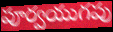
పూర్వయుగపు